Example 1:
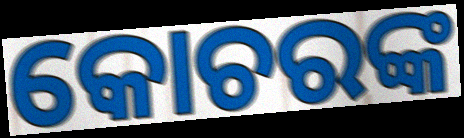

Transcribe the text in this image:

କୋଚରଙ୍କ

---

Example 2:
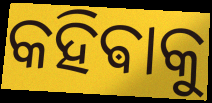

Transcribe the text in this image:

କହିଵାକୁ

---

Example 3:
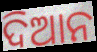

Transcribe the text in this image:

ଦିଆନ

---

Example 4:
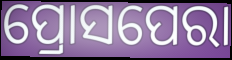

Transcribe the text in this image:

ପ୍ରୋସପେରା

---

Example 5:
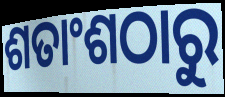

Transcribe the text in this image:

ଶତାଂଶଠାରୁ